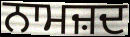
ਨਾਮਜ਼ਦ